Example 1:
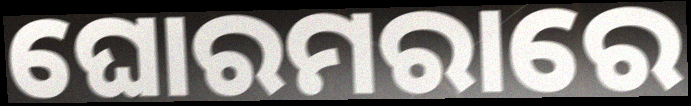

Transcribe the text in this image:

ଘୋରମରାରେ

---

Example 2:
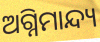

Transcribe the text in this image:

ଅଗ୍ନିମାନ୍ଦ୍ୟ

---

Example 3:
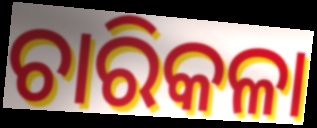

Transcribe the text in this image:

ଚାରିକଳା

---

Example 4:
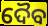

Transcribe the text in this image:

ଦୈବ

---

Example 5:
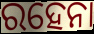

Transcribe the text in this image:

ରହେନା